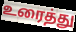
உரைத்து